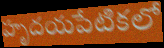
హృదయపేటికలో